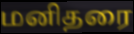
மனிதரை